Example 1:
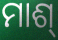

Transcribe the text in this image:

ମାଶ୍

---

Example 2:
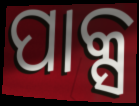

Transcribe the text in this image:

ପାକ୍ସ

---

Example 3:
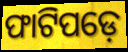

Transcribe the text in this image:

ଫାଟିପଡ଼େ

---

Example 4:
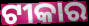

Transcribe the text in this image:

ଟୀକାର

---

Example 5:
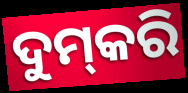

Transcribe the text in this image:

ଦୁମ୍‍କରି